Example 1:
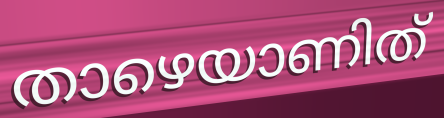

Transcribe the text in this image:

താഴെയാണിത്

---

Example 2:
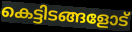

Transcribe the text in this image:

കെട്ടിടങ്ങളോട്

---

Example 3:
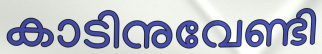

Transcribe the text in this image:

കാടിനുവേണ്ടി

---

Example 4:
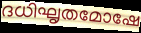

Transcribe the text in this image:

ദധിഘൃതമോഷേ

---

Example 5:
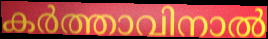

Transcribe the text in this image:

കർത്താവിനാൽ